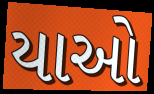
યાઓ